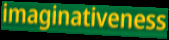
imaginativeness